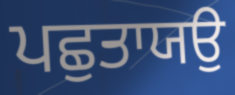
ਪਛੁਤਾਯਉ